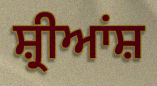
ਸ਼੍ਰੀਆਂਸ਼